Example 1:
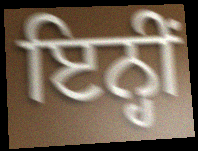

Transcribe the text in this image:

ਇਨ੍ਹੀਂ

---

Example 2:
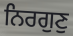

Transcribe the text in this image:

ਨਿਰਗੁਣੁ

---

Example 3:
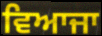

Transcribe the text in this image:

ਵਿਆਜਾ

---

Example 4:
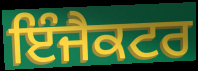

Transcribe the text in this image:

ਇੰਜੈਕਟਰ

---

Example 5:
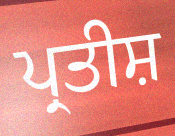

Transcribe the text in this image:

ਪ੍ਰਤੀਸ਼